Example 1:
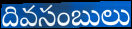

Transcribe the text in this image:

దివసంబులు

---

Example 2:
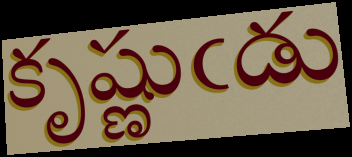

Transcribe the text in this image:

కృష్ణుఁడు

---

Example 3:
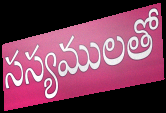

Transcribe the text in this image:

సస్యములతో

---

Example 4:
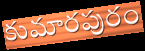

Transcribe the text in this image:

కుమారపురం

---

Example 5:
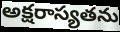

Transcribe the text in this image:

అక్షరాస్యతను